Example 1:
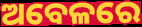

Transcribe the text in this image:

ଅବେଳରେ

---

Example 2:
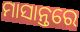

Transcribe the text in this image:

ମାସାନ୍ତରେ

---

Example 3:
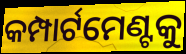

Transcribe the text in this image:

କମ୍ପାର୍ଟମେଣ୍ଟକୁ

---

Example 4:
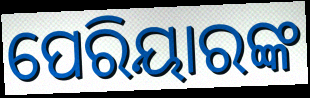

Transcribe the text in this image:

ପେରିୟାରଙ୍କ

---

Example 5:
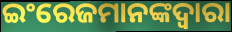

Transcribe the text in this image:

ଇଂରେଜମାନଙ୍କଦ୍ୱାରା